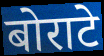
बोराटे